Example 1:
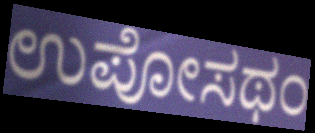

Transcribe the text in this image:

ಉಪೋಸಥಂ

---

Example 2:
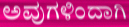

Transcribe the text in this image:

ಅವುಗಳಿಂದಾಗಿ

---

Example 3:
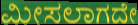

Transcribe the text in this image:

ಮೀಸಲಾಗದೇ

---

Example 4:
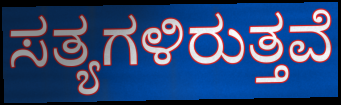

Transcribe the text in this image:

ಸತ್ಯಗಳಿರುತ್ತವೆ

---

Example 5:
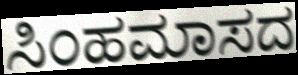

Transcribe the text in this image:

ಸಿಂಹಮಾಸದ